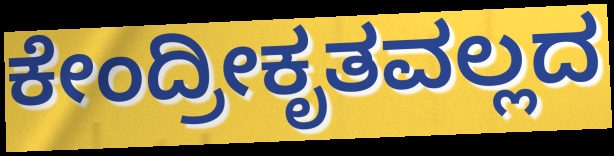
ಕೇಂದ್ರೀಕೃತವಲ್ಲದ